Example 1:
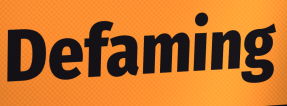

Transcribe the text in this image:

Defaming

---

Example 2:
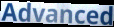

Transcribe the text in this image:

Advanced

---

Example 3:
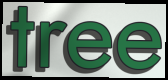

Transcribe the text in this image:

tree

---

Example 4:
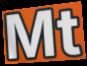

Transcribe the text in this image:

Mt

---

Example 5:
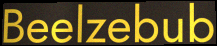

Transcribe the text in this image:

Beelzebub